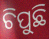
ଚିପୁଛି